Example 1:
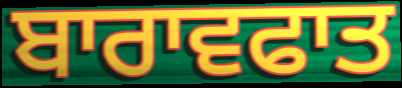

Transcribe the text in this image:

ਬਾਰਾਵਫਾਤ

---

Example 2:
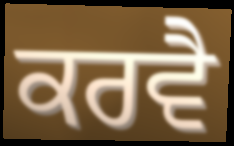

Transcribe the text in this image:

ਕਰਵੈ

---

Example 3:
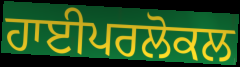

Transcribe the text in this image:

ਹਾਈਪਰਲੋਕਲ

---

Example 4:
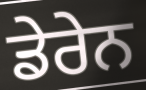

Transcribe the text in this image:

ਡੇਰੇਨ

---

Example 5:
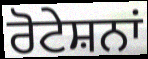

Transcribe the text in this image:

ਰੋਟੇਸ਼ਨਾਂ